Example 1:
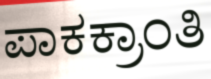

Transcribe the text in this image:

ಪಾಕಕ್ರಾಂತಿ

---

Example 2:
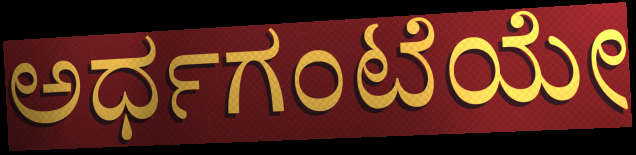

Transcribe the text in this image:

ಅರ್ಧಗಂಟೆಯೇ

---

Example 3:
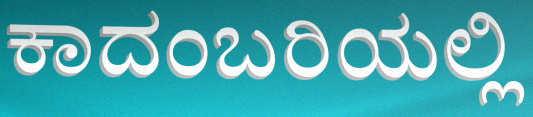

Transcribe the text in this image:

ಕಾದಂಬರಿಯಲ್ಲಿ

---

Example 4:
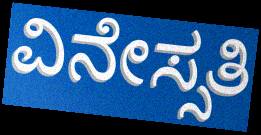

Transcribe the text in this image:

ವಿನೇಸ್ಸತಿ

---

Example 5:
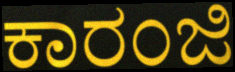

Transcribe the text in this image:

ಕಾರಂಜಿ